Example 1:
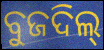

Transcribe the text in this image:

ବୁଜଦିଲ୍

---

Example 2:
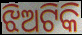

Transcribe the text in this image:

ଝିଅଟିକି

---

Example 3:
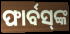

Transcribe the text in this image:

ଫାର୍ବସ୍‌ଙ୍କ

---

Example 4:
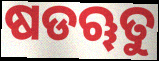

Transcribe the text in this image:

ଷଡୠତୁ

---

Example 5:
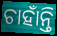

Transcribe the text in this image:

ଚାହାଁନ୍ତି